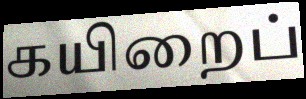
கயிறைப்